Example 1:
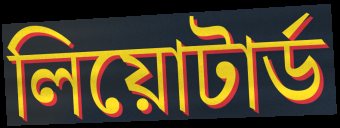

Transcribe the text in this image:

লিয়োটার্ড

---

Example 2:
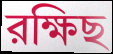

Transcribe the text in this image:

রক্ষিছ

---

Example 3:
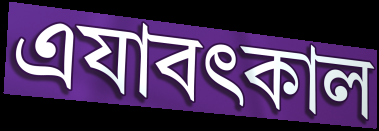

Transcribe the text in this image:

এযাবৎকাল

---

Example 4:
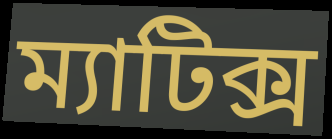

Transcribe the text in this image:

ম্যাটিক্স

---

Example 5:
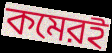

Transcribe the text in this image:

কমেরই